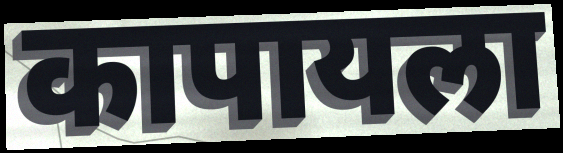
कापायला